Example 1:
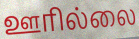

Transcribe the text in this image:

ஊரில்லை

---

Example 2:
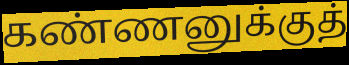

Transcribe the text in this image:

கண்ணனுக்குத்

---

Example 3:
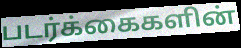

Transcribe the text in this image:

படர்க்கைகளின்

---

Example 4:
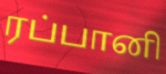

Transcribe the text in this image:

ரப்பானி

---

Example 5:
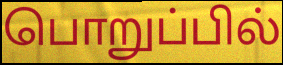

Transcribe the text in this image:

பொறுப்பில்